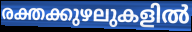
രക്തക്കുഴലുകളിൽ